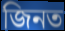
জিনত